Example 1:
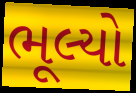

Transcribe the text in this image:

ભૂલ્‍યો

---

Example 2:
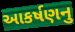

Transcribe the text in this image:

આકર્ષણનુ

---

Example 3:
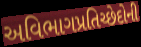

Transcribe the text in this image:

અવિભાગપ્રતિચ્છેદોની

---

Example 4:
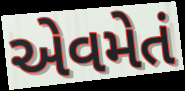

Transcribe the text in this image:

એવમેતં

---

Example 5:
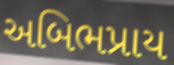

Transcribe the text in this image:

અબિભપ્રાય